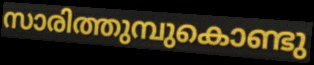
സാരിത്തുമ്പുകൊണ്ടു